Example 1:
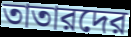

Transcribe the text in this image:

তাতারদের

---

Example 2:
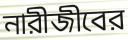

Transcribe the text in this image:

নারীজীবের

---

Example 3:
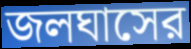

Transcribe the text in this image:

জলঘাসের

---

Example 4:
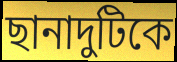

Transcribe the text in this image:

ছানাদুটিকে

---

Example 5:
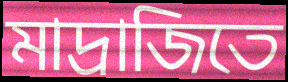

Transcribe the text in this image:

মাদ্রাজিতে